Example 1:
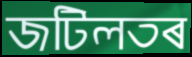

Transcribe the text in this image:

জটিলতৰ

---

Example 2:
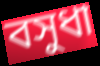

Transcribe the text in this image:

বসুধা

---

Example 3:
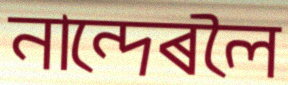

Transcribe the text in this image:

নান্দেৰলৈ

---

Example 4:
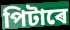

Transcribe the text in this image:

পিটাৰে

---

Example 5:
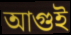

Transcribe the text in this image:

আগুই